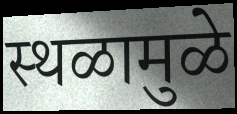
स्थळामुळे